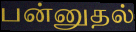
பன்னுதல்